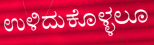
ಉಳಿದುಕೊಳ್ಳಲೂ